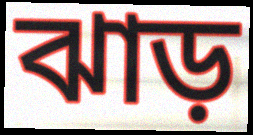
ঝাড়